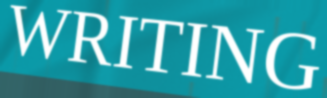
WRITING